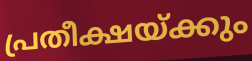
പ്രതീക്ഷയ്ക്കും